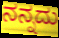
ನನ್ನದು